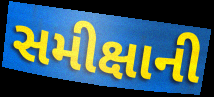
સમીક્ષાની